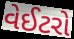
વેઈટરો